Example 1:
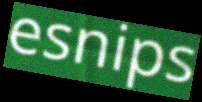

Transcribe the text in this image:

esnips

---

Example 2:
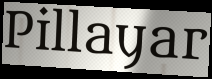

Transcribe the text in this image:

Pillayar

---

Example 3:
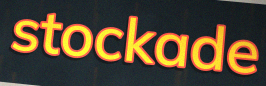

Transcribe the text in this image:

stockade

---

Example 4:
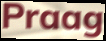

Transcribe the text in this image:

Praag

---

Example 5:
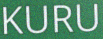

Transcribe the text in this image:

KURU